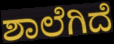
ಶಾಲೆಗಿದೆ